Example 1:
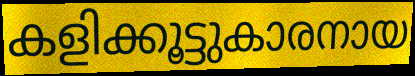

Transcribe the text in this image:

കളിക്കൂട്ടുകാരനായ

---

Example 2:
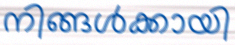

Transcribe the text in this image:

നിങ്ങൾക്കായി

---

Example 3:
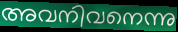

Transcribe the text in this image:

അവനിവനെന്നു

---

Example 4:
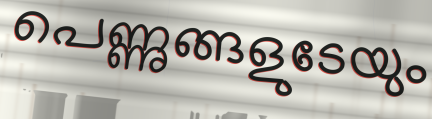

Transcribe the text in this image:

പെണ്ണുങ്ങളുടേയും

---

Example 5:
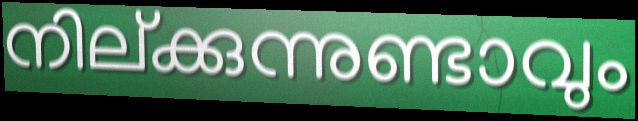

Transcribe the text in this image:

നില്ക്കുന്നുണ്ടാവും